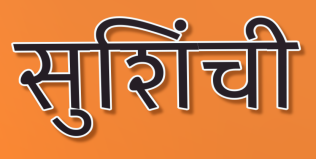
सुशिंची